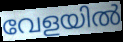
വേളയിൽ